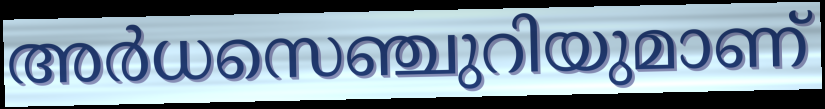
അർധസെഞ്ചുറിയുമാണ്